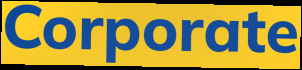
Corporate